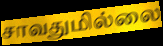
சாவதுமில்லை